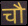
चौ